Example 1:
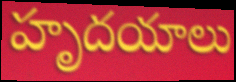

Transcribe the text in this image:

హృదయాలు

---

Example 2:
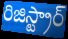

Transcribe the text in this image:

రిజిస్ట్రార్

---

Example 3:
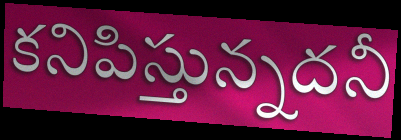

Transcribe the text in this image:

కనిపిస్తున్నదనీ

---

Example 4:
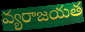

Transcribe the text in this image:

వ్యరాజయత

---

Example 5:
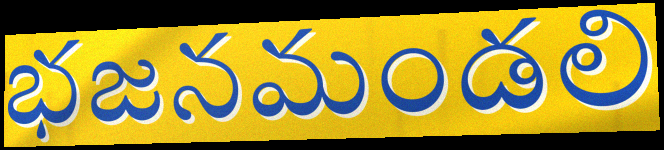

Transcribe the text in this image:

భజనమండలి